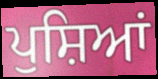
ਪੁਸ਼ਿਆਂ